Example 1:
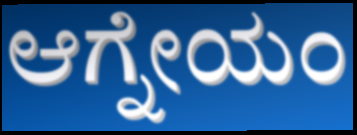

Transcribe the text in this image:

ಆಗ್ನೇಯಂ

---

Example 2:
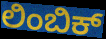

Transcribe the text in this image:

ಲಿಂಬಿಕ್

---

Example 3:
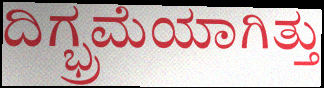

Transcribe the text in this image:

ದಿಗ್ಭ್ರಮೆಯಾಗಿತ್ತು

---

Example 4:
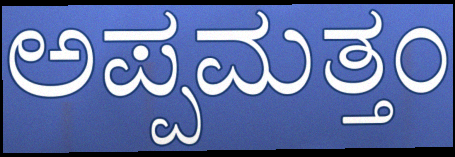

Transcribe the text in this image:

ಅಪ್ಪಮತ್ತಂ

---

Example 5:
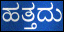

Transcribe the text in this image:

ಹತ್ತದು